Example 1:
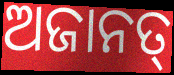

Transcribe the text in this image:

ଅଜାନତ୍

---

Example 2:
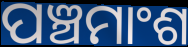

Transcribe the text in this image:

ପଞ୍ଚମାଂଶ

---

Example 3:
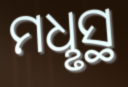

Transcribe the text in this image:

ମଧୢସ୍ଥ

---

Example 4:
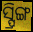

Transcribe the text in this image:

ସ୍ପ୍ରିଙ୍ଗ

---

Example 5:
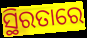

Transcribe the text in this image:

ସ୍ଥିରତାରେ